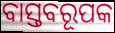
ବାସ୍ତବରୂପକ